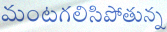
మంటగలిసిపోతున్న